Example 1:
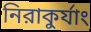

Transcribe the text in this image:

নিরাকুর্যাং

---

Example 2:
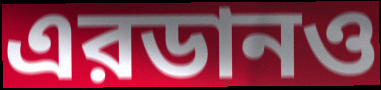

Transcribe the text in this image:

এরডানও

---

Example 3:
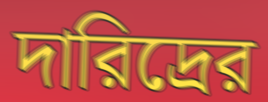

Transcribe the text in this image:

দারিদ্রের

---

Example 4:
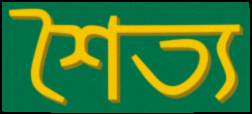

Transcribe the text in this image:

শৈত্য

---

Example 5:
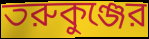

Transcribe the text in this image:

তরুকুঞ্জের